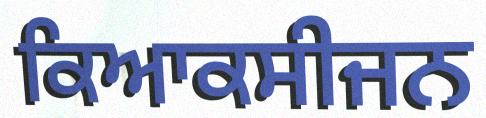
ਕਿਆਕਸੀਜਨ